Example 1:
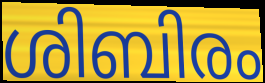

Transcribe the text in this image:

ശിബിരം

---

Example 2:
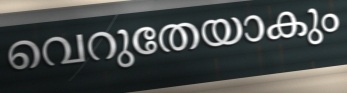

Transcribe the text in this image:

വെറുതേയാകും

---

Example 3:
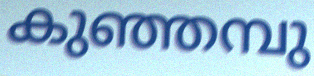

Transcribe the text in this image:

കുഞ്ഞമ്പു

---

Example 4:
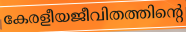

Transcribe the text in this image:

കേരളീയജീവിതത്തിന്റെ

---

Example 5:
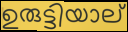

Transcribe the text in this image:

ഉരുട്ടിയാല്